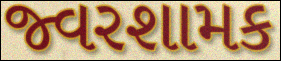
જ્વરશામક